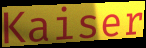
Kaiser